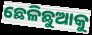
ଛେଳିଛୁଆକୁ